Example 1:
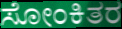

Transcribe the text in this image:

ಸೋಂಕಿತರ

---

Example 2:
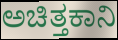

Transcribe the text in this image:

ಅಚಿತ್ತಕಾನಿ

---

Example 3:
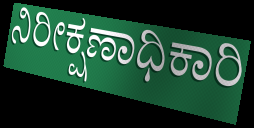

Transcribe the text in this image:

ನಿರೀಕ್ಷಣಾಧಿಕಾರಿ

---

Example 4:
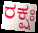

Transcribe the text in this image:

ರಕ್ಷಃ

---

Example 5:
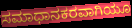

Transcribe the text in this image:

ಸಮಾಧಾನಕರವಾಗಿಯೂ